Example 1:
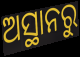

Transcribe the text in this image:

ଅସ୍ଥାନରୁ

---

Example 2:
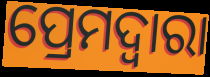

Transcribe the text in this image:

ପ୍ରେମଦ୍ୱାରା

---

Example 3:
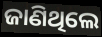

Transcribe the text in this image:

ଜାଣିଥିଲେ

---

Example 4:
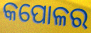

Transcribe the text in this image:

କପୋଳର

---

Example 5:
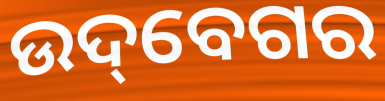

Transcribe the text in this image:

ଉଦ୍‌ବେଗର